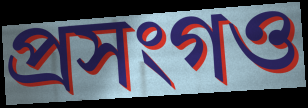
প্ৰসংগও